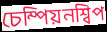
চেম্পিয়নশ্বিপ